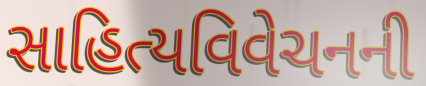
સાહિત્યવિવેચનની